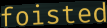
foisted